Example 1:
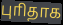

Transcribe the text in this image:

புரிதாக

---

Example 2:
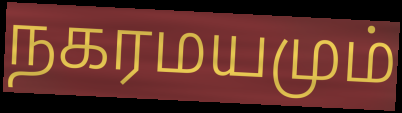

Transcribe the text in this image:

நகரமயமும்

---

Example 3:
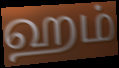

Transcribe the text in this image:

ஹம்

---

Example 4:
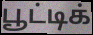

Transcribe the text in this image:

பூட்டிக்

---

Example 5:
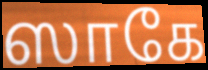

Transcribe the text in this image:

ஸாகே